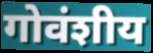
गोवंशीय